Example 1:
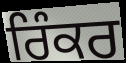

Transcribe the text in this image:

ਰਿੰਕਰ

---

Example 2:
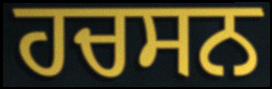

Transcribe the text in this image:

ਹਚਸਨ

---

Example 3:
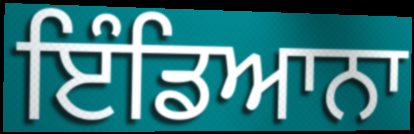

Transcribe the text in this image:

ਇੰਡਿਆਨਾ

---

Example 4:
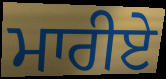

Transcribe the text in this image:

ਮਾਰੀਏ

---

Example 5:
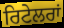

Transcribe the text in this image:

ਰਿਟੇਲਰਾਂ